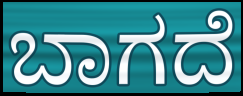
ಬಾಗದೆ